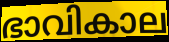
ഭാവികാല